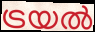
ട്രയൽ